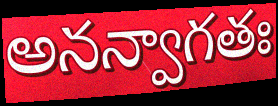
అనన్వాగతః